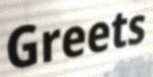
Greets